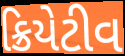
ક્રિયેટીવ